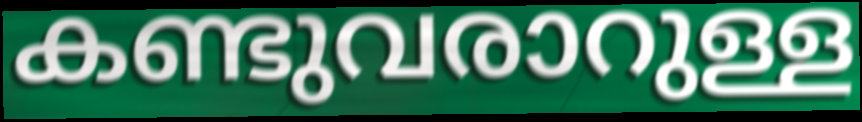
കണ്ടുവരാറുള്ള